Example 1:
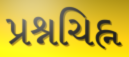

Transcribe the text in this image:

પ્રશ્નચિહ્ન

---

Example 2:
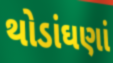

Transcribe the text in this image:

થોડાંઘણાં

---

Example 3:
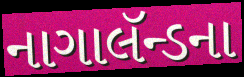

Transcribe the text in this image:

નાગાલૅન્ડના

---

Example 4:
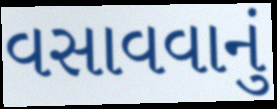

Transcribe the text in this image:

વસાવવાનું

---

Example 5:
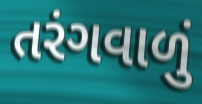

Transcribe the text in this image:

તરંગવાળું